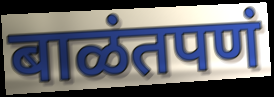
बाळंतपणं